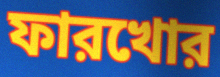
ফারখোর